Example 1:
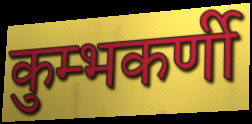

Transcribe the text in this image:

कुम्भकर्णी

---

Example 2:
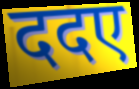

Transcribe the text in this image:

ददए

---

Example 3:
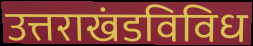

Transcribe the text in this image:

उत्तराखंडविविध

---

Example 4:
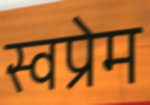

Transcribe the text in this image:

स्वप्रेम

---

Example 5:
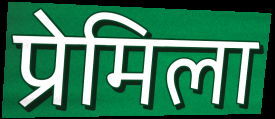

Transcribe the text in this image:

प्रेमिला